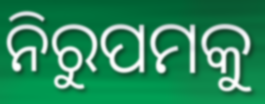
ନିରୁପମକୁ